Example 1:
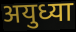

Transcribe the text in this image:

अयुध्या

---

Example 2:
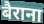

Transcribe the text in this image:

बैराना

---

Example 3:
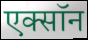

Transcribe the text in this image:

एक्सॉन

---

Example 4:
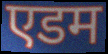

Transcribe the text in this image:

एडम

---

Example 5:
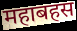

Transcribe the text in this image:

महाबहस